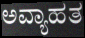
ಅವ್ಯಾಹತ